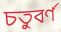
চতুবৰ্ণ